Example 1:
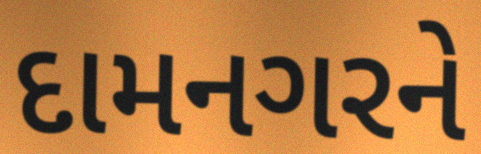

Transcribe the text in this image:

દામનગરને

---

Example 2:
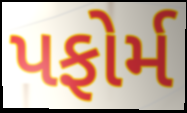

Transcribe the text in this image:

પફોર્મ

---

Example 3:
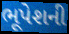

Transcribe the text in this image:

ભૂપેશની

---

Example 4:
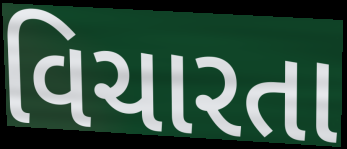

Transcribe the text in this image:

વિચારતા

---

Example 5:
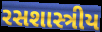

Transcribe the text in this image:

રસશાસ્ત્રીય